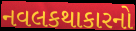
નવલકથાકારનો